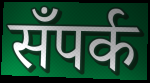
सँपर्क